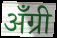
अँग्री